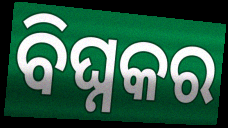
ବିଘ୍ନକର